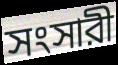
সংসারী